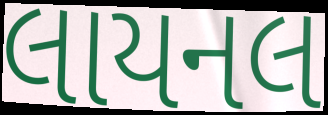
લાયનલ